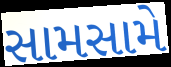
સામસામે